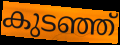
കുടഞ്ഞ്